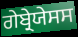
ਗੇਬ੍ਰੇਯੇਸਸ